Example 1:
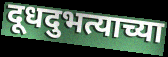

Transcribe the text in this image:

दूधदुभत्याच्या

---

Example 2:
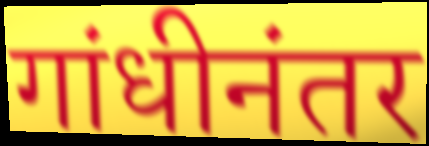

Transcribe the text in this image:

गांधीनंतर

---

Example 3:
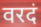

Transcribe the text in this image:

वरदं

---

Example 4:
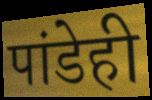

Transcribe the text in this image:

पांडेही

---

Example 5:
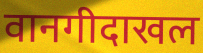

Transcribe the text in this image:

वानगीदाखल